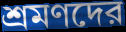
শ্রমণদের